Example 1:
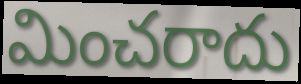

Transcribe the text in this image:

మించరాదు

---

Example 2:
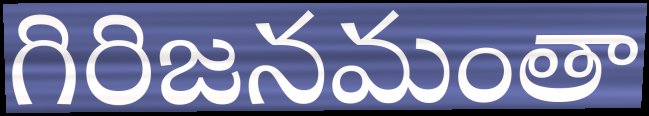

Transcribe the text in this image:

గిరిజనమంతా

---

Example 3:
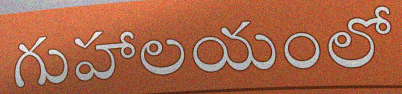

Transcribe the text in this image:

గుహాలయంలో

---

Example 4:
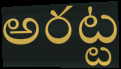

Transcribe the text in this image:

అరట్ట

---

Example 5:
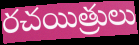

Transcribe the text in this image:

రచయిత్రులు